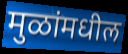
मुळांमधील